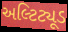
અલ્ટિટ્યૂડ